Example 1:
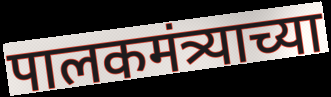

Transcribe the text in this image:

पालकमंत्र्याच्या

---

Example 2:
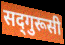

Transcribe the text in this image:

सद्‍गुरूसी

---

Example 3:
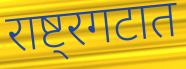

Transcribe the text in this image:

राष्ट्रगटात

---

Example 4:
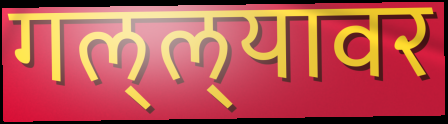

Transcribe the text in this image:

गल्ल्यावर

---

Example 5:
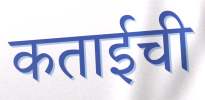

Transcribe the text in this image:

कताईची